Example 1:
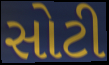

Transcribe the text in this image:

સોટી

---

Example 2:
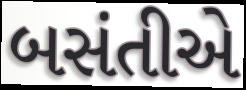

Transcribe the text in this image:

બસંતીએ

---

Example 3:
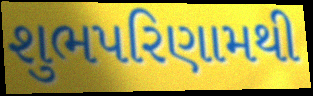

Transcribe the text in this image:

શુભપરિણામથી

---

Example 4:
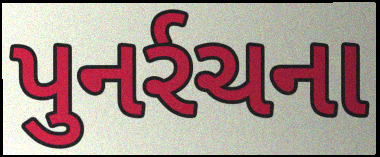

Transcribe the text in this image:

પુનર્રચના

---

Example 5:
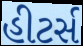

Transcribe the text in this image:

હીટર્સ